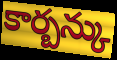
కార్బన్కు